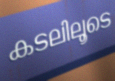
കടലിലൂടെ